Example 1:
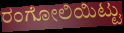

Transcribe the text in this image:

ರಂಗೋಲಿಯಿಟ್ಟು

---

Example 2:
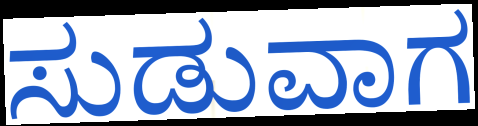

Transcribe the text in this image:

ಸುಡುವಾಗ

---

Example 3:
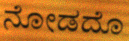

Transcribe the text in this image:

ನೋಡದೊ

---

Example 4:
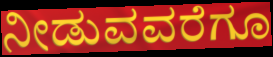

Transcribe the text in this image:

ನೀಡುವವರೆಗೂ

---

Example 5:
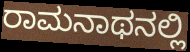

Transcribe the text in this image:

ರಾಮನಾಥನಲ್ಲಿ